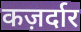
कज़र्दार